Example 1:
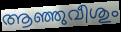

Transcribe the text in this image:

ആഞ്ഞുവീശും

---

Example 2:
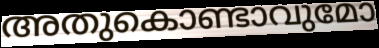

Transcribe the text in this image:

അതുകൊണ്ടാവുമോ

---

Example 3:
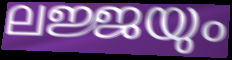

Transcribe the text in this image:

ലജ്ജയും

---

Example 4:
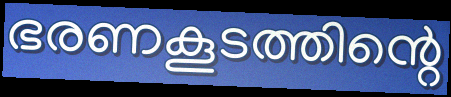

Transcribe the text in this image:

ഭരണകൂടത്തിന്റെ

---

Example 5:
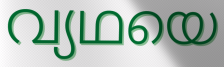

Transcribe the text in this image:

വ്യഥയെ